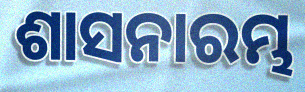
ଶାସନାରମ୍ଭ